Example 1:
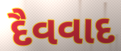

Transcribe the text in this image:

દૈવવાદ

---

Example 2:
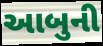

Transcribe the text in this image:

આબુની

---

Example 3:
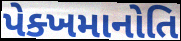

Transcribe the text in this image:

પેક્ખમાનોતિ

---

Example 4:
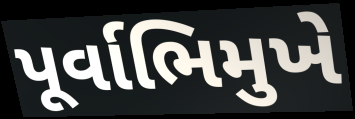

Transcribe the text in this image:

પૂર્વાભિમુખે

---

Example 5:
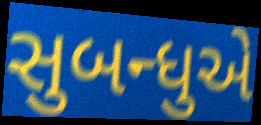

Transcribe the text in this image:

સુબન્ધુએ